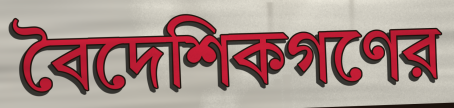
বৈদেশিকগণের